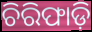
ଚିରିଫାଡ଼ି